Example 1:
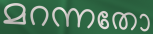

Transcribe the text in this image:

മറന്നതോ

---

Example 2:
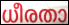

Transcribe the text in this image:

ധീരതാ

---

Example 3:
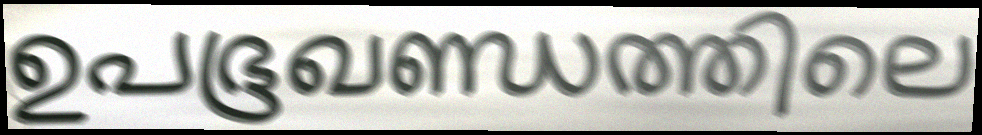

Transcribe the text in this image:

ഉപഭൂഖണ്ഡത്തിലെ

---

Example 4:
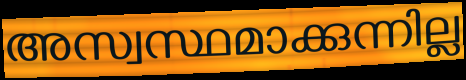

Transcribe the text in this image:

അസ്വസ്ഥമാക്കുന്നില്ല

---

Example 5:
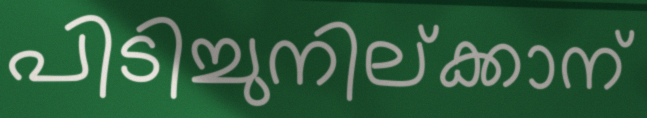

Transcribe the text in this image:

പിടിച്ചുനില്ക്കാന്